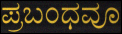
ಪ್ರಬಂಧವೂ